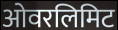
ओवरलिमिट